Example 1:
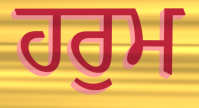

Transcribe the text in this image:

ਹਰੁਮ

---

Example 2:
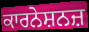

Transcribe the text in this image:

ਕਾਰਨੇਸ਼ਨਜ਼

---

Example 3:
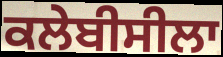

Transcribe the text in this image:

ਕਲੇਬੀਸੀਲਾ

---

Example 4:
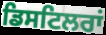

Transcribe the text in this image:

ਡਿਸਟਿਲਰਾਂ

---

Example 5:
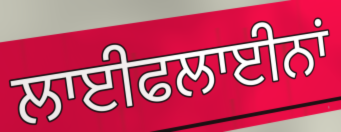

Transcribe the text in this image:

ਲਾਈਫਲਾਈਨਾਂ